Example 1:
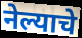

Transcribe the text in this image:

नेल्याचे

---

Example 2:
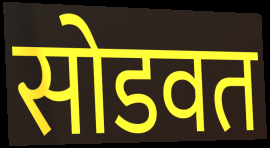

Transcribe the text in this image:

सोडवत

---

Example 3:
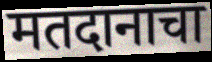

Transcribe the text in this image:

मतदानाचा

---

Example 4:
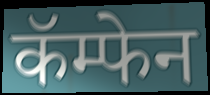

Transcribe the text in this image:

कॅम्फेन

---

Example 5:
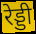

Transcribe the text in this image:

रेड्डी